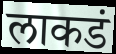
लाकडं